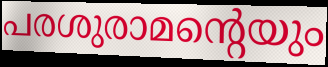
പരശുരാമന്റെയും